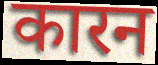
कारन